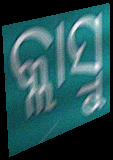
କ୍ଲାସ୍ରୁ